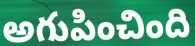
అగుపించింది